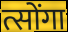
त्सोंगा